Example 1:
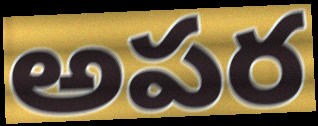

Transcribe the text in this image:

అపర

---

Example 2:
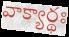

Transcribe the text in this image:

వాక్యార్థః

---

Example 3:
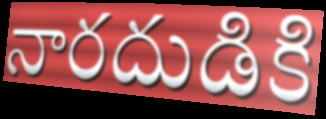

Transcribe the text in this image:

నారదుడికి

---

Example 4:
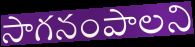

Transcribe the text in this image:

సాగనంపాలని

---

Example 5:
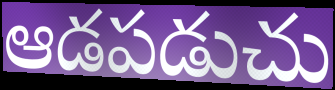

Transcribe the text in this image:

ఆడపడుచు